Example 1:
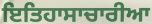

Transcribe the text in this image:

ਇਤਿਹਾਸਾਚਾਰੀਆ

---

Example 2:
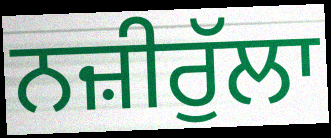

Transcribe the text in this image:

ਨਜ਼ੀਰੁੱਲਾ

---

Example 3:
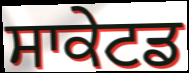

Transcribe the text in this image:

ਸਾਕੇਟਡ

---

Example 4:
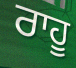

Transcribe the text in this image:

ਰਾਹੂ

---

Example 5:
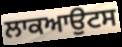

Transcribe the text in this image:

ਲਾਕਆਉਟਸ